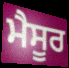
ਮੈਸੂਰ